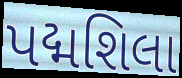
પદ્મશિલા